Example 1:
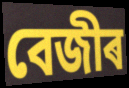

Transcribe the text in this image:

বেজীৰ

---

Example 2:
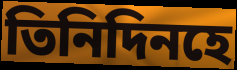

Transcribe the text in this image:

তিনিদিনহে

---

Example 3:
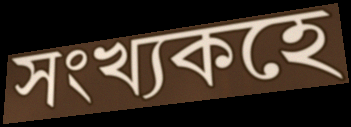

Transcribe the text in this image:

সংখ্যকহে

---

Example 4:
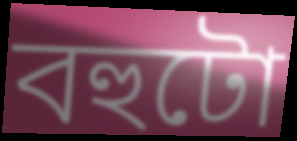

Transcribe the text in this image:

বহুটো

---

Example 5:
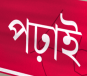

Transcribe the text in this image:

পঢ়াই